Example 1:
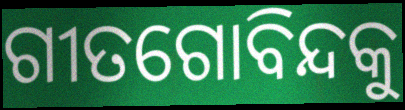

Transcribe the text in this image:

ଗୀତଗୋବିନ୍ଦକୁ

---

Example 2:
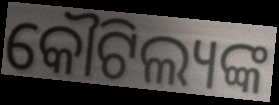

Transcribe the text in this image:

କୌଟିଲ୍ୟଙ୍କ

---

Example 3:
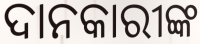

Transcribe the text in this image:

ଦାନକାରୀଙ୍କ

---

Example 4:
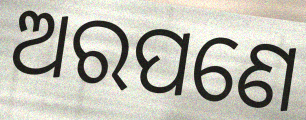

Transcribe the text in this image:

ଅରପଣେ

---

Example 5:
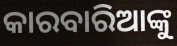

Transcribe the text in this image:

କାରବାରିଆଙ୍କୁ